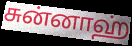
சுன்னாஹ்